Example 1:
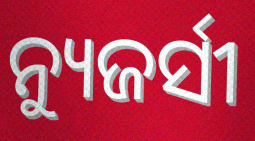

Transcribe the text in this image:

ନ୍ୟୁଜର୍ସୀ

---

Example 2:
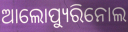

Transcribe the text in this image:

ଆଲୋପ୍ୟୁରିନୋଲ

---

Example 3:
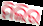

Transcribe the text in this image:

ମିଲିର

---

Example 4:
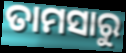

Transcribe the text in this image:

ତାମସାରୁ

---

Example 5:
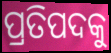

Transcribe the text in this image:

ପ୍ରତିପଦକୁ